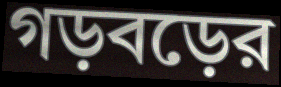
গড়বড়ের